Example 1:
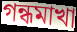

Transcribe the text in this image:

গন্ধমাখা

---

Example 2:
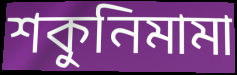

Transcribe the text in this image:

শকুনিমামা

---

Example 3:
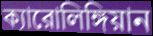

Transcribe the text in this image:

ক্যারোলিঙ্গিয়ান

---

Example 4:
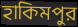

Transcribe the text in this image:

হাকিমপুর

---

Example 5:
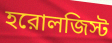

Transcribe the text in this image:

হরোলজিস্ট